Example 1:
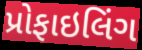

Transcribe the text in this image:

પ્રોફાઇલિંગ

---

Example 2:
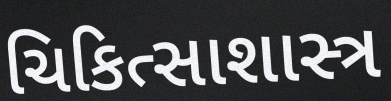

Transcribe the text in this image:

ચિકિત્સાશાસ્ત્ર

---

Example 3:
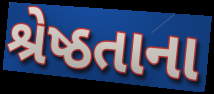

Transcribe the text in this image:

શ્રેષ્ઠતાના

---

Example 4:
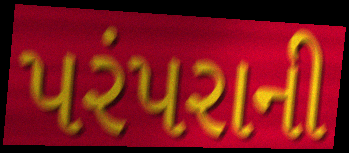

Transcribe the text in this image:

પરંપરાની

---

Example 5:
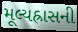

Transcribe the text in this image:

મૂલ્યહ્રાસની